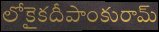
లోకైకదీపాంకురామ్